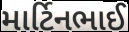
માર્ટિનભાઈ